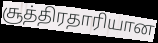
சூத்திரதாரியான